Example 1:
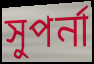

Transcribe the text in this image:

সুপর্না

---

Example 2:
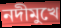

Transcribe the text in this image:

নদীমুখে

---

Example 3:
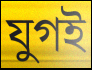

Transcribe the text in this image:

যুগই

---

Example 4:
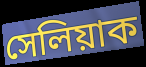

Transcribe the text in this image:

সেলিয়াক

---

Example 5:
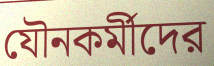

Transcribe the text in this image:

যৌনকর্মীদের